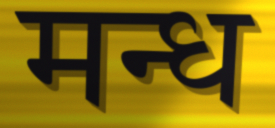
मन्ध